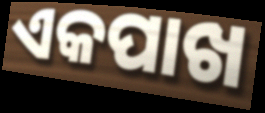
ଏକପାଖ